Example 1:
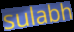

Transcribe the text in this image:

sulabh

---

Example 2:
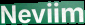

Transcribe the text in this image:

Neviim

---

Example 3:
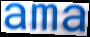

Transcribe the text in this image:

ama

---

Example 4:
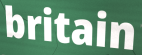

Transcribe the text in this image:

britain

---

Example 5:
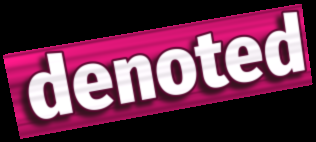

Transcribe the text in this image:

denoted